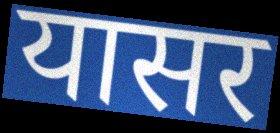
यासर